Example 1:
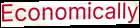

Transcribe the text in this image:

Economically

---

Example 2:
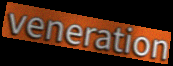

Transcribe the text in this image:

veneration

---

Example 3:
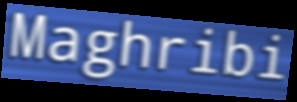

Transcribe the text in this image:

Maghribi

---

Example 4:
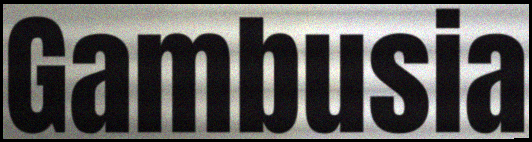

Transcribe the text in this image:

Gambusia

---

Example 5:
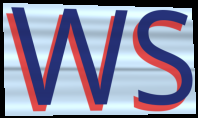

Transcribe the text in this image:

WS